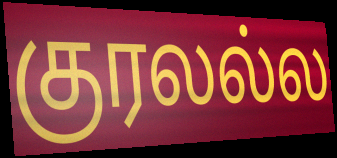
குரலல்ல